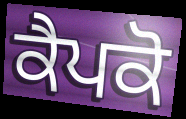
ਕੈਪਕੋ